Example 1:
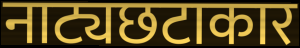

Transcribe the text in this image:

नाट्यछटाकार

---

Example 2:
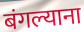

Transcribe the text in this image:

बंगल्याना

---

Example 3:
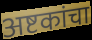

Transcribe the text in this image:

अष्टकांचा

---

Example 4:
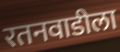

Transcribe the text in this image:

रतनवाडीला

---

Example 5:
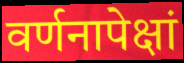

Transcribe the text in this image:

वर्णनापेक्षां